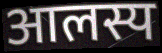
आलस्‍य